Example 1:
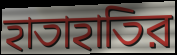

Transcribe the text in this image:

হাতাহাতির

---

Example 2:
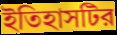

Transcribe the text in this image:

ইতিহাসটির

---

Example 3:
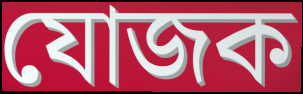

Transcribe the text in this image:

যোজক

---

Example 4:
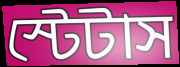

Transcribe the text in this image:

স্টেটাস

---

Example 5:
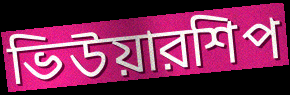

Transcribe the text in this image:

ভিউয়ারশিপ